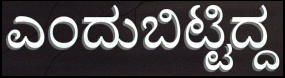
ಎಂದುಬಿಟ್ಟಿದ್ದ